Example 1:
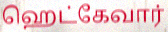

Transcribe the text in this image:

ஹெட்கேவார்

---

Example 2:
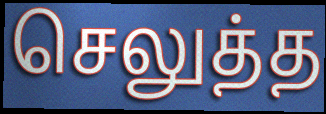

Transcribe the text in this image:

செலுத்த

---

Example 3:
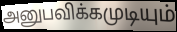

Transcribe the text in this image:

அனுபவிக்கமுடியும்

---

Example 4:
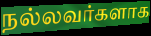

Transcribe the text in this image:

நல்லவர்களாக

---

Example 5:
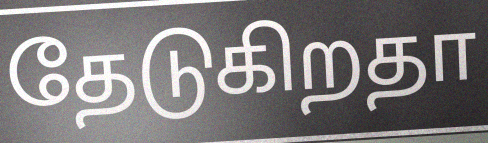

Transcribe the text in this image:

தேடுகிறதா